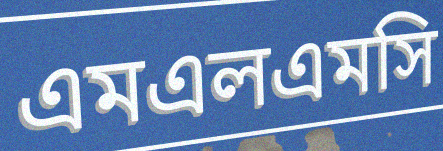
এমএলএমসি